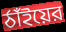
ঠাঁইয়ের